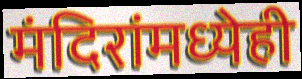
मंदिरांमध्येही